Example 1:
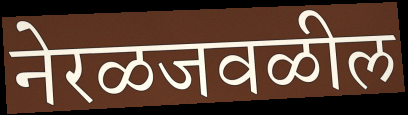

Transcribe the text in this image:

नेरळजवळील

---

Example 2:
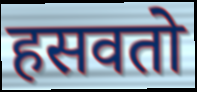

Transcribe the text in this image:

हसवतो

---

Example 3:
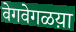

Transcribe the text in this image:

वेगवेगळय़ा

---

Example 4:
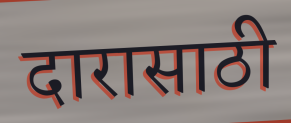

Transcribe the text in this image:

दारासाठी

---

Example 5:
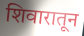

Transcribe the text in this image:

शिवारातून